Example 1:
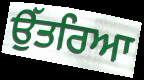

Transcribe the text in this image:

ਉੱਤਰਿਆ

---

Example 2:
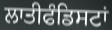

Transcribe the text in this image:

ਲਾਤੀਫੰਡਿਸਟਾਂ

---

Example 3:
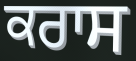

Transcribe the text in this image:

ਕਰਾਸ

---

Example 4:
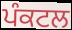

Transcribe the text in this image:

ਪੰਕਟਲ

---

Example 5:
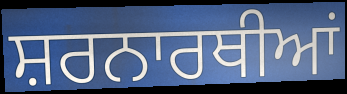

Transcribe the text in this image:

ਸ਼ਰਨਾਰਥੀਆਂ